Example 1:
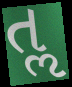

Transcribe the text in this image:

તૢ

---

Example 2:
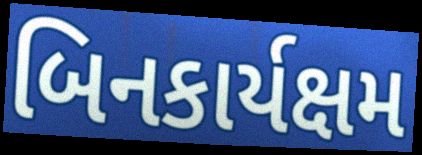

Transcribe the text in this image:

બિનકાર્યક્ષમ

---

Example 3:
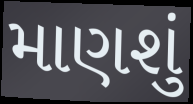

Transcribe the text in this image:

માણશું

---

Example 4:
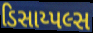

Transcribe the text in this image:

ડિસાય્પલ્સ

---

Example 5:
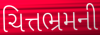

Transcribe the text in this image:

ચિત્તભ્રમની